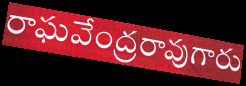
రాఘవేంద్రరావుగారు